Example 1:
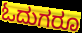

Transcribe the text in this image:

ಓದುಗರೂ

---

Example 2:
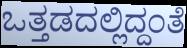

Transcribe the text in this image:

ಒತ್ತಡದಲ್ಲಿದ್ದಂತೆ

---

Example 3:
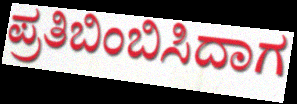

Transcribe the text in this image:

ಪ್ರತಿಬಿಂಬಿಸಿದಾಗ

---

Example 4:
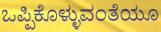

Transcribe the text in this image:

ಒಪ್ಪಿಕೊಳ್ಳುವಂತೆಯೂ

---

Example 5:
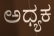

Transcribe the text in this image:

ಅಧ್ಯಕ